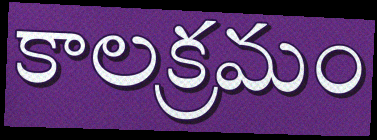
కాలక్రమం